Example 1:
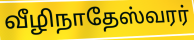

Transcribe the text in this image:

வீழிநாதேஸ்வரர்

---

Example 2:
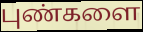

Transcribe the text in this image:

புண்களை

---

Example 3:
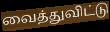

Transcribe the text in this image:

வைத்துவிட்டு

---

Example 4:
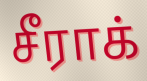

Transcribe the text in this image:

சீராக்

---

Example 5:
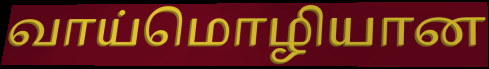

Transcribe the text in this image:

வாய்மொழியான